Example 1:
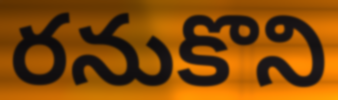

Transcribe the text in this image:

రనుకొని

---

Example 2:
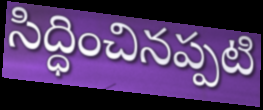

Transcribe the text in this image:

సిద్ధించినప్పటి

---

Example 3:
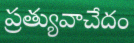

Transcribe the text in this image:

ప్రత్యువాచేదం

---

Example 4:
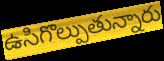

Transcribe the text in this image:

ఉసిగొల్పుతున్నారు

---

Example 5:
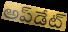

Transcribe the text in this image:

అప్‌డేట్